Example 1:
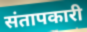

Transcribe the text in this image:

संतापकारी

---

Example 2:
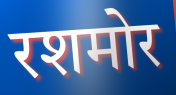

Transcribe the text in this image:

रशमोर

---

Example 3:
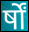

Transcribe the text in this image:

र्षों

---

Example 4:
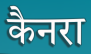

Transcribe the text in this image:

कैनरा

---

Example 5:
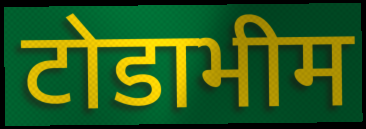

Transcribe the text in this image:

टोडाभीम